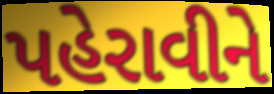
પહેરાવીને